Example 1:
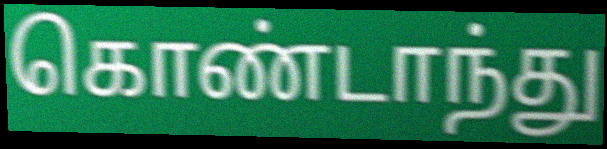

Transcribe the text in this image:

கொண்டாந்து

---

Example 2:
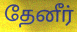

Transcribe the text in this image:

தேனீர்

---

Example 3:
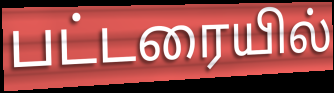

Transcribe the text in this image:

பட்டரையில்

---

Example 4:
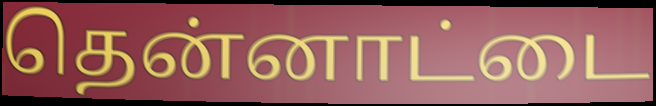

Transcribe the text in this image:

தென்னாட்டை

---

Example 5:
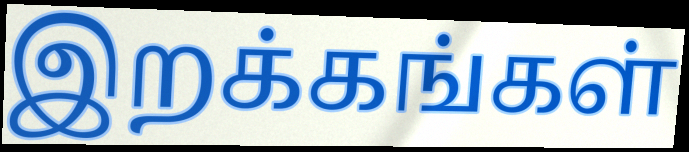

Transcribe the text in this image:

இறக்கங்கள்